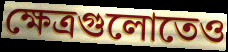
ক্ষেত্রগুলোতেও